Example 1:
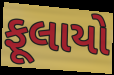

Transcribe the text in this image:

ફૂલાયો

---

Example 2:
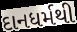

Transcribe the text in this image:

દાનધર્મથી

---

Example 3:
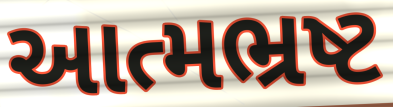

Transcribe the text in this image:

આત્મભ્રષ્ટ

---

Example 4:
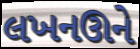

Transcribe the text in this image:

લખનઊને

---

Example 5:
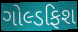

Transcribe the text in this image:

ગોલ્ડફિશ